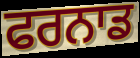
ਫਰਨਾਡ